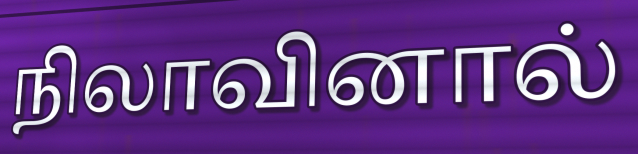
நிலாவினால்